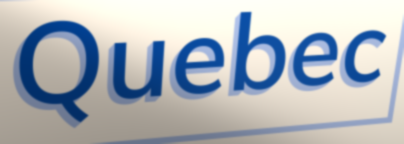
Quebec